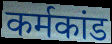
कर्मकांड